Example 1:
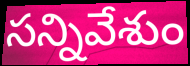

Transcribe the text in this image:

సన్నివేశుం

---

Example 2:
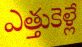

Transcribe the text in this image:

ఎత్తుకెళ్లే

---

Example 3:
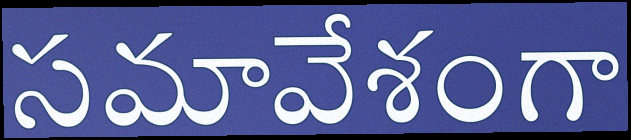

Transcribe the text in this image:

సమావేశంగా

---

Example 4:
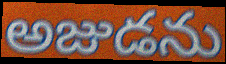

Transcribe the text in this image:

అజుడను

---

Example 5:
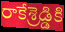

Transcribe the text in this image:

రాకేశ్రెడ్డికి